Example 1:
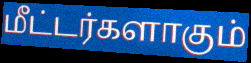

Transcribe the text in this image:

மீட்டர்களாகும்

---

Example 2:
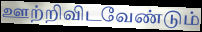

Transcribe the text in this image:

ஊற்றிவிடவேண்டும்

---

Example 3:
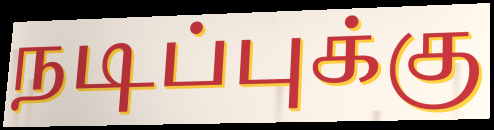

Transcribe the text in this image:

நடிப்புக்கு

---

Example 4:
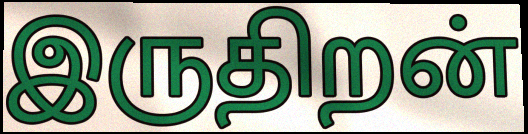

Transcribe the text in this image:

இருதிறன்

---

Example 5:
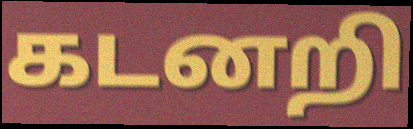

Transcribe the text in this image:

கடனறி